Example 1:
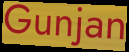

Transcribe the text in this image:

Gunjan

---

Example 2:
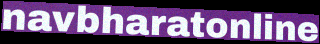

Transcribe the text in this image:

navbharatonline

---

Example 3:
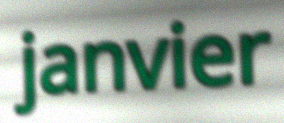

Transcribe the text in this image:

janvier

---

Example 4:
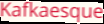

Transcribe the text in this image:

Kafkaesque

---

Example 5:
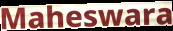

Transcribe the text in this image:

Maheswara